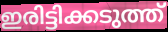
ഇരിട്ടിക്കടുത്ത്